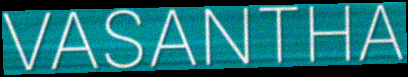
VASANTHA